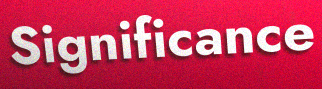
Significance